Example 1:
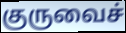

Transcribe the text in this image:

குருவைச்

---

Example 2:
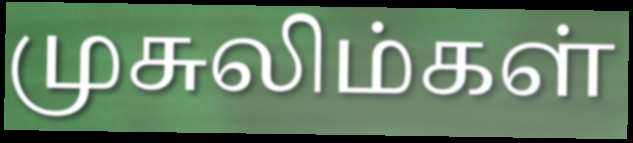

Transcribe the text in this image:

முசுலிம்கள்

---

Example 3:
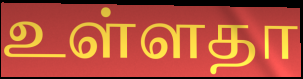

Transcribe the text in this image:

உள்ளதா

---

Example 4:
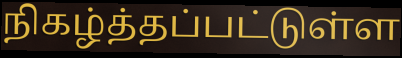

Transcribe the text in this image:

நிகழ்த்தப்பட்டுள்ள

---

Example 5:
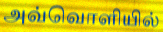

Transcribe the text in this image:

அவ்வொளியில்